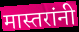
मास्तरांनी